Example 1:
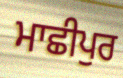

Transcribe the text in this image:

ਮਾਛੀਪੁਰ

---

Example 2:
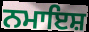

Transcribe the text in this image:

ਨਮਾਇਸ਼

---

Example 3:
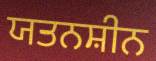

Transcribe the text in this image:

ਯਤਨਸ਼ੀਨ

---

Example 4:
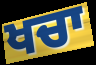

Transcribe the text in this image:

ਖਚਾ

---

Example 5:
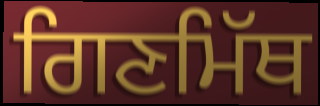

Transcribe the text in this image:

ਗਿਣਮਿੱਥ